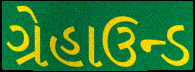
ગ્રેહાઉન્ડ